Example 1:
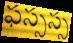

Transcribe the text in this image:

ఫస్సస్స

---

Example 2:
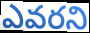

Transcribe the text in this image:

ఎవరని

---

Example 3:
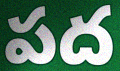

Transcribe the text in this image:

పద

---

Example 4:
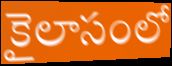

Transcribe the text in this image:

కైలాసంలో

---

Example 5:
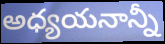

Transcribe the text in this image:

అధ్యయనాన్నీ